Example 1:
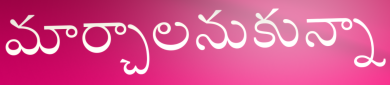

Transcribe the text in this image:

మార్చాలనుకున్నా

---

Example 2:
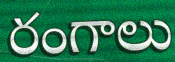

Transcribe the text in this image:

రంగాలు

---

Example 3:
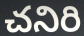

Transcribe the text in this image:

చనిరి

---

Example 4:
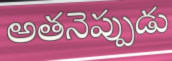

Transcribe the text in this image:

అతనెప్పుడు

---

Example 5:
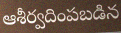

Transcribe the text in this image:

ఆశీర్వదింపబడిన